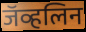
जॅव्हलिन